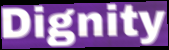
Dignity